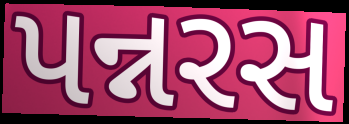
પન્નરસ